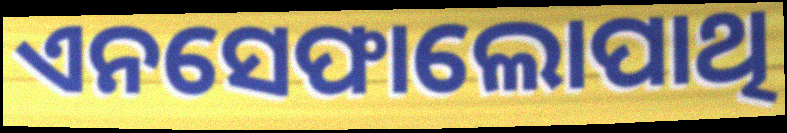
ଏନସେଫାଲୋପାଥି